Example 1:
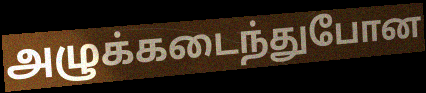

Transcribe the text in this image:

அழுக்கடைந்துபோன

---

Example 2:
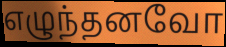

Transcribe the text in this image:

எழுந்தனவோ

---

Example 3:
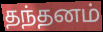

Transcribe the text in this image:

தந்தனம்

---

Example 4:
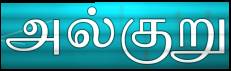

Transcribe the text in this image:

அல்குறு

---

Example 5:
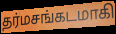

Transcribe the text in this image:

தர்மசங்கடமாகி